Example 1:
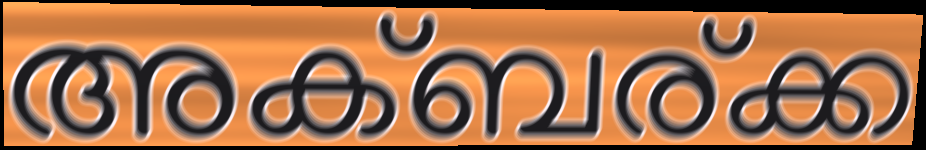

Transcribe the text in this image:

അക്ബര്ക്ക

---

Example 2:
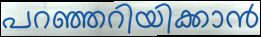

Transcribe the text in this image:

പറഞ്ഞറിയിക്കാൻ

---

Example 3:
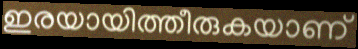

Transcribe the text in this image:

ഇരയായിത്തീരുകയാണ്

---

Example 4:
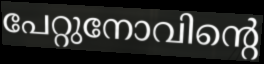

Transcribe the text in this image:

പേറ്റുനോവിന്റെ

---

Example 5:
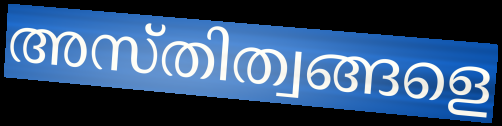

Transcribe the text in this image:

അസ്തിത്വങ്ങളെ